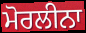
ਮੋਰਲੀਨਾ